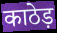
काठेड़